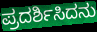
ಪ್ರದರ್ಶಿಸಿದನು